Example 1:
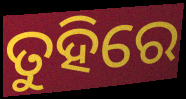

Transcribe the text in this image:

ତୁହିରେ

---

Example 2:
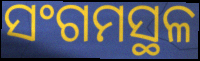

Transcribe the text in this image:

ସଂଗମସ୍ଥଳ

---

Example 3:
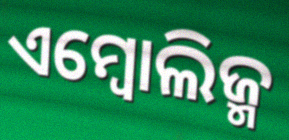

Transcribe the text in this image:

ଏମ୍ବୋଲିଜ୍ମ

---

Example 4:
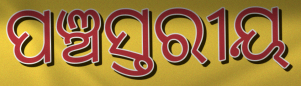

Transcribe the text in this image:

ପଞ୍ଚସ୍ତରୀୟ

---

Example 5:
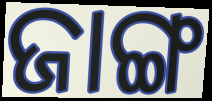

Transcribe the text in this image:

ଜାଙ୍ଗ